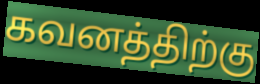
கவனத்திற்கு